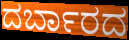
ದರ್ಬಾರದ